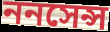
ননসেন্স